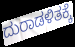
ದುರಾಡಳಿತಕ್ಕೆ